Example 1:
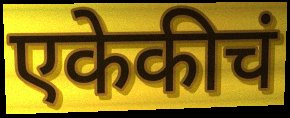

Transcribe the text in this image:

एकेकीचं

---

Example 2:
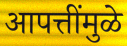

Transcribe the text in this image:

आपत्तींमुळे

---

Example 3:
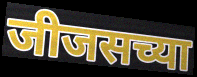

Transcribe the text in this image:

जीजसच्या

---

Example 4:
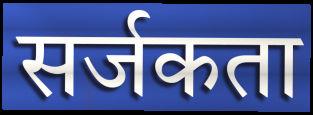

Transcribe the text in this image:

सर्जकता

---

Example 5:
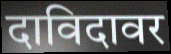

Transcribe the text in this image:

दाविदावर